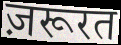
ज़रूरत